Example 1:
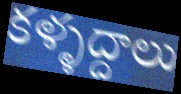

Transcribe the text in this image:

కళ్ళద్దాలు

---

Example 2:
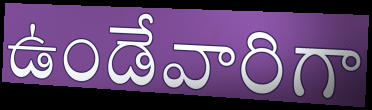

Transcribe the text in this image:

ఉండేవారిగా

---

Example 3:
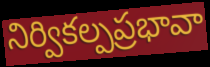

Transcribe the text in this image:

నిర్వికల్పప్రభావా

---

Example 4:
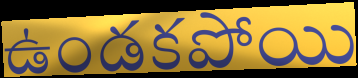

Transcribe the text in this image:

ఉండకపోయి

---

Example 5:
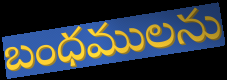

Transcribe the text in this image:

బంధములను